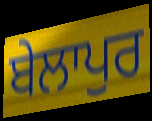
ਬੇਲਾਪੁਰ